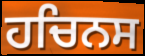
ਹਚਿਨਸ